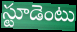
స్టూడెంటు